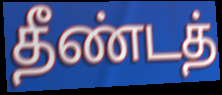
தீண்டத்